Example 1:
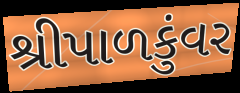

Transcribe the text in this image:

શ્રીપાળકુંવર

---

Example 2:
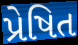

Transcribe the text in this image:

પ્રેષિત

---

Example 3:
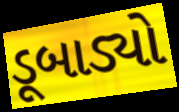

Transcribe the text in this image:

ડૂબાડ્યો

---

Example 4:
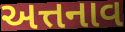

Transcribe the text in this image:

અત્તનાવ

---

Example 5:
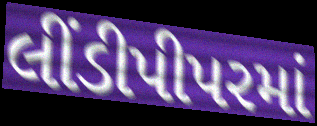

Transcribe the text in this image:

લીંડીપીપરમાં